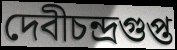
দেবীচন্দ্রগুপ্ত